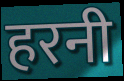
हरनी